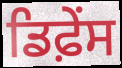
ਡਿਫ਼ੇੰਸ